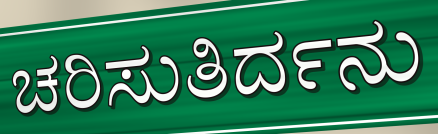
ಚರಿಸುತಿರ್ದನು